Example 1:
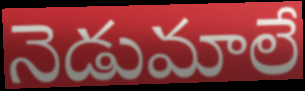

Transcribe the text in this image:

నెడుమాలే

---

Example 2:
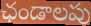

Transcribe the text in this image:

ఛండాలపు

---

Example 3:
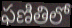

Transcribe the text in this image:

ఫణితిలో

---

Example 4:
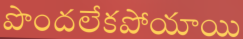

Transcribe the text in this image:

పొందలేకపోయాయి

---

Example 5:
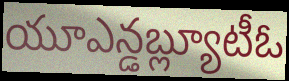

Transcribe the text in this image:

యూఎన్డబ్ల్యూటీఓ